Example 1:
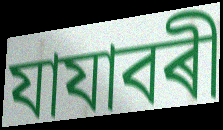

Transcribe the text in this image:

যাযাবৰী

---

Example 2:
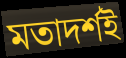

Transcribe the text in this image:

মতাদৰ্শই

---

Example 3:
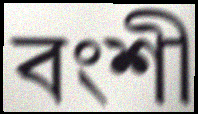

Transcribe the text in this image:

বংশী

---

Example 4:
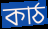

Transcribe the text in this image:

কাঠ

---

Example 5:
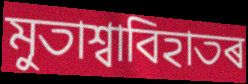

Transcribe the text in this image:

মুতাশ্বাবিহাতৰ